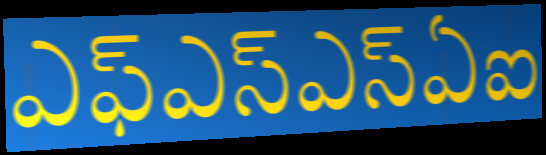
ఎఫ్ఎస్ఎస్ఏఐ